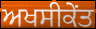
ਅਖਸੀਕੇਂਤ